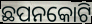
ଛପନକୋଟି